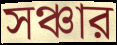
সঞ্চার